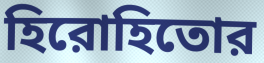
হিরোহিতোর